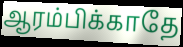
ஆரம்பிக்காதே